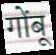
गोंबू